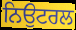
ਨਿਉਟਰਲ